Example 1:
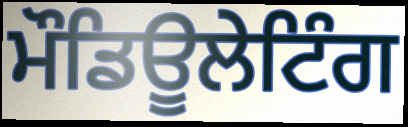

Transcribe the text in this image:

ਮੌਡਿਊਲੇਟਿੰਗ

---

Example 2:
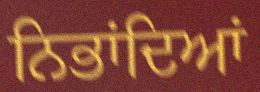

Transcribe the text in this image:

ਨਿਭਾਂਦਿਆਂ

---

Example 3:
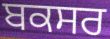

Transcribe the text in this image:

ਬਕਸਰ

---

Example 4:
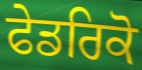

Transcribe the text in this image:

ਫੇਡਰਿਕੋ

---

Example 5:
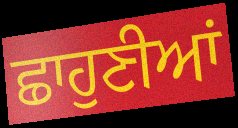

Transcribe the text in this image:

ਛਾਹੁਣੀਆਂ